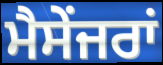
ਮੈਸੇਂਜਰਾਂ